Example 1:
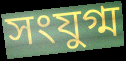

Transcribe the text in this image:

সংযুগ্ম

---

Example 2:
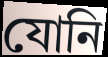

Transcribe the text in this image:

যোনি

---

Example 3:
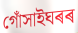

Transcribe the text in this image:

গোঁসাইঘৰৰ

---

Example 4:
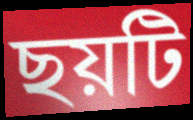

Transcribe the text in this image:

ছয়টি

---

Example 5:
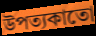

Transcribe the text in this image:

উপত্যকাতো